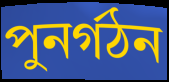
পুনর্গঠন